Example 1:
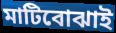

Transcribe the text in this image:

মাটিবোঝাই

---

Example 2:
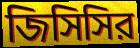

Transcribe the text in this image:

জিসিসির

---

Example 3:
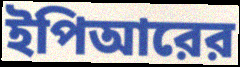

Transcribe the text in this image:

ইপিআরের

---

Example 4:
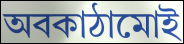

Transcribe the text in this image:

অবকাঠামোই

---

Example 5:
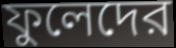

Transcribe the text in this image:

ফুলেদের